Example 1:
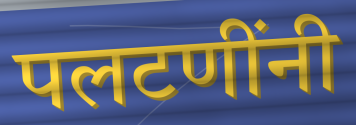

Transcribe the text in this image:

पलटणींनी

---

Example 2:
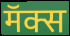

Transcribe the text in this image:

मॅक्स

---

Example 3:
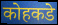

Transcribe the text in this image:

कोहकडे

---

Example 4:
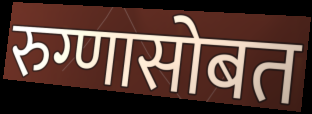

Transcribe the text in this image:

रुग्णासोबत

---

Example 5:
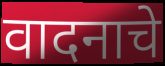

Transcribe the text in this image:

वादनाचे